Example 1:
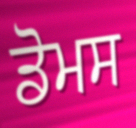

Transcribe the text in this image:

ਡੋਮਸ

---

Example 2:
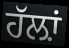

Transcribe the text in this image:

ਹੱਲ਼ਾਂ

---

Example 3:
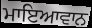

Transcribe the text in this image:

ਮਾਇਆਵਾਨ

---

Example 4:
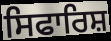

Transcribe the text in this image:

ਸਿਫਾਰਿਸ਼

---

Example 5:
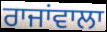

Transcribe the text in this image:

ਰਾਜਾਂਵਾਲਾ